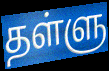
தள்ளு